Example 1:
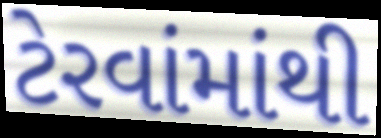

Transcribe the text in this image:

ટેરવાંમાંથી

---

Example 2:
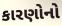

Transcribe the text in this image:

કારણોનો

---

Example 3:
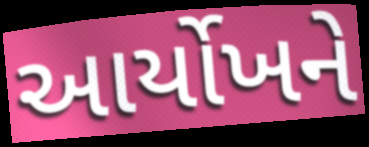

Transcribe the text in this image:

આર્યોખને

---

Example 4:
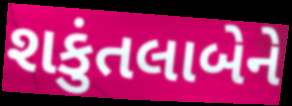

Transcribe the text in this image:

શકુંતલાબેને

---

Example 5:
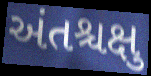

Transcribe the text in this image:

અંતશ્ચક્ષુ